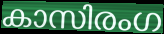
കാസിരംഗ